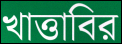
খাত্তাবির